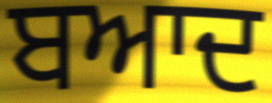
ਬਆਦ